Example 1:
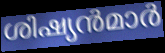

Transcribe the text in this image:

ശിഷ്യൻമാർ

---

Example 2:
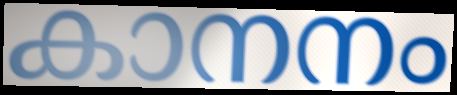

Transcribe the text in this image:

കാനനം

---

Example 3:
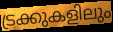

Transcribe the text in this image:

ട്രക്കുകളിലും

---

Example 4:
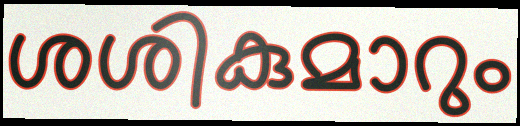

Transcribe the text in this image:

ശശികുമാറും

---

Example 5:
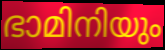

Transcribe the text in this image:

ഭാമിനിയും